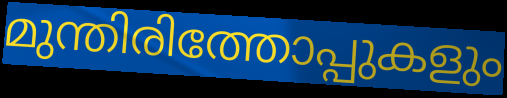
മുന്തിരിത്തോപ്പുകളും